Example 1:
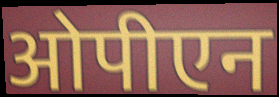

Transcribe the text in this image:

ओपीएन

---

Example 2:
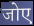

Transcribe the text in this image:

जोए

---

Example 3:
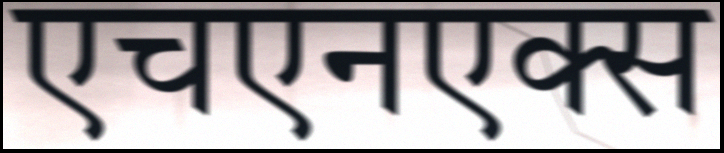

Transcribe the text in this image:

एचएनएक्स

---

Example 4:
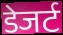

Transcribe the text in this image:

डेजर्ट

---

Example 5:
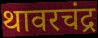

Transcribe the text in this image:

थावरचंद्र